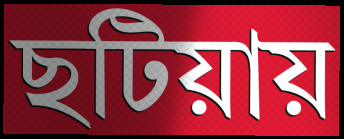
ছটিয়ায়